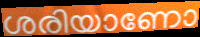
ശരിയാണോ